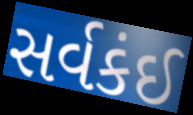
સર્વકંઈ